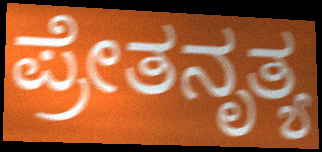
ಪ್ರೇತನೃತ್ಯ